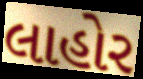
લાહોર